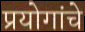
प्रयोगांचे